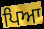
ਪਿਆ